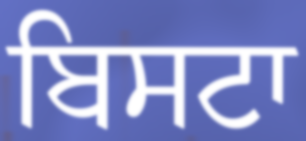
ਬਿਸਟਾ